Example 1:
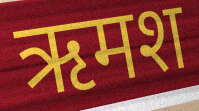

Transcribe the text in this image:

ऋमश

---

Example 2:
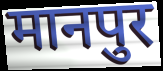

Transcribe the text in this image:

मानपुर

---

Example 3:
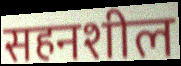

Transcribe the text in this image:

सहनशील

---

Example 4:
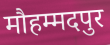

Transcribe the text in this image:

मौहम्मदपुर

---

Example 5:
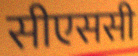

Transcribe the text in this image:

सीएससी